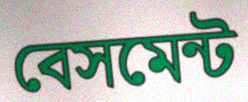
বেসমেন্ট